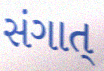
સંગાત્